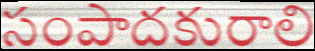
సంపాదకురాలి